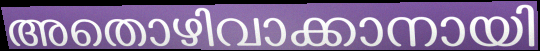
അതൊഴിവാക്കാനായി